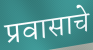
प्रवासाचे